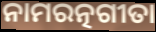
ନାମରତ୍ନଗୀତା